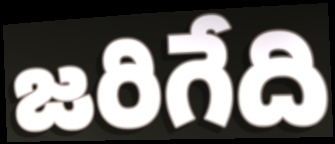
జరిగేది